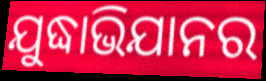
ଯୁଦ୍ଧାଭିଯାନର